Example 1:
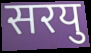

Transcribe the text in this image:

सरयु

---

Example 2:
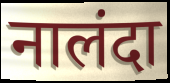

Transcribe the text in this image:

नालंदा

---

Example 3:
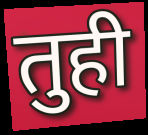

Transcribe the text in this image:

तुही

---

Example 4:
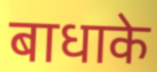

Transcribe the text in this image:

बाधाके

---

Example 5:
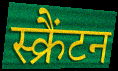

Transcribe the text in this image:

स्क्रैंटन